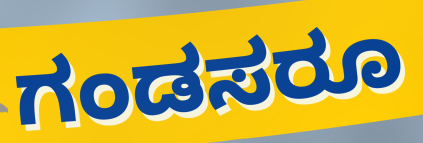
ಗಂಡಸರೂ